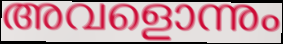
അവളൊന്നും